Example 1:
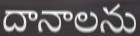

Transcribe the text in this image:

దానాలను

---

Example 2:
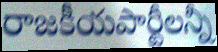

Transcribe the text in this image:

రాజకీయపార్టీలన్నీ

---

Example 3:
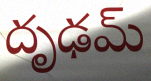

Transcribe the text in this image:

దృఢమ్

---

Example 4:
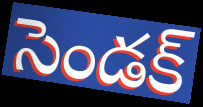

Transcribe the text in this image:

సెండక్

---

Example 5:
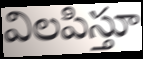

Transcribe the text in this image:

విలపిస్తూ